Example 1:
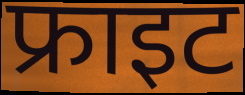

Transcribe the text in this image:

फ्राइट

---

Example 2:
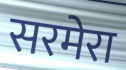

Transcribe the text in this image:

सरमेरा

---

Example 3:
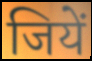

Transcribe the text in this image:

जियें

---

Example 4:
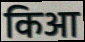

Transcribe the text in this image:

किआ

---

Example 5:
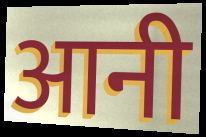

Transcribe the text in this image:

आनी